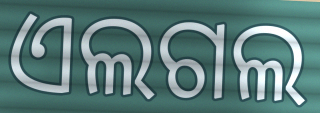
ଏଲଗଲ